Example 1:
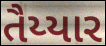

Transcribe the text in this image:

તૈય્યાર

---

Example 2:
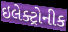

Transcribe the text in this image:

ઇલેક્ટ્રોનીક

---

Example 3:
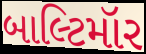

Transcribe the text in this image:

બાલ્ટિમૉર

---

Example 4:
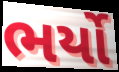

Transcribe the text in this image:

ભર્યો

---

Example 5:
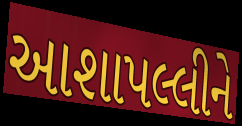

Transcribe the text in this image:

આશાપલ્લીને